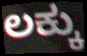
ಲಕ್ಕು